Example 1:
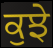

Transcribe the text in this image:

ਕੁਝੇ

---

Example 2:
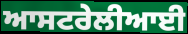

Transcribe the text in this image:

ਆਸਟਰੇਲੀਆਈ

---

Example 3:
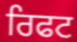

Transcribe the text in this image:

ਰਿਫਟ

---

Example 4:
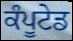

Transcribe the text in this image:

ਕੰਪੂਟੇਡ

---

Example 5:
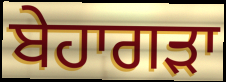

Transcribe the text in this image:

ਬੇਹਾਗੜਾ